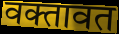
वक्तावत